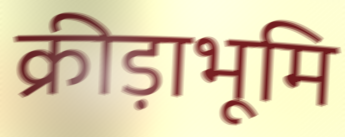
क्रीड़ाभूमि